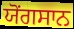
ਯੋਂਗਸਾਨ